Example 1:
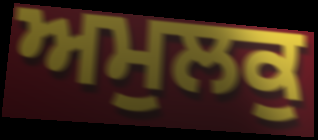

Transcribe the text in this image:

ਅਮੁਲਕੁ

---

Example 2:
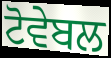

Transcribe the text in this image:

ਟੋਵੇਬਲ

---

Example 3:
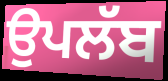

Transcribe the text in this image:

ਉਪਲੱਬ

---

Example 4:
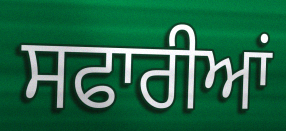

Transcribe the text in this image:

ਸਫਾਰੀਆਂ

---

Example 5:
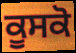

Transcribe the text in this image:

ਕੂਸਕੋ